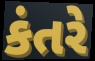
કંતરે